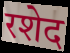
रशेद